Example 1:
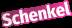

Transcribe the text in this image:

Schenkel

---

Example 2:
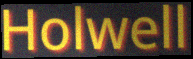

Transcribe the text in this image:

Holwell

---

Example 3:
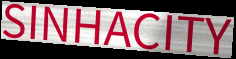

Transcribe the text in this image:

SINHACITY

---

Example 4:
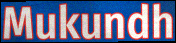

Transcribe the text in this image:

Mukundh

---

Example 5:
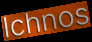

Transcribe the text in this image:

Ichnos